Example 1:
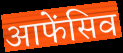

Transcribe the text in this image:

आफेंसिव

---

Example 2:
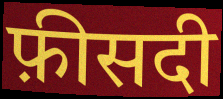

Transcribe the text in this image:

फ़ीसदी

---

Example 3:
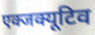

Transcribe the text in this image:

एक्जक्यूटिव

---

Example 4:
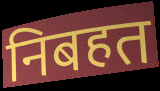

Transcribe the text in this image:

निबहत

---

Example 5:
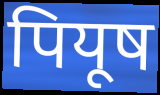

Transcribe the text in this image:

पियूष